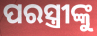
ପରସ୍ତ୍ରୀଙ୍କୁ